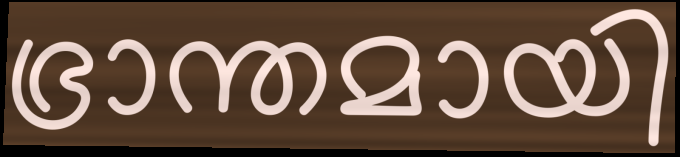
ഭ്രാന്തമായി